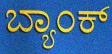
ಬ್ಯಾಂಕ್